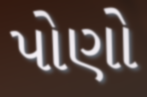
પોણો